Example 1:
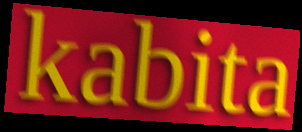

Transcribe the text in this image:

kabita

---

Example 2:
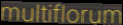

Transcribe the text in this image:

multiflorum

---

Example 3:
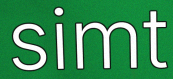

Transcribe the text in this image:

simt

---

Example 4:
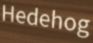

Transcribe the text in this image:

Hedehog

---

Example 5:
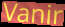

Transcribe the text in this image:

Vanir